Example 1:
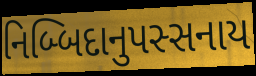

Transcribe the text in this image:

નિબ્બિદાનુપસ્સનાય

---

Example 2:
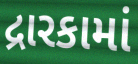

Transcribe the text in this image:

દ્રારકામાં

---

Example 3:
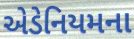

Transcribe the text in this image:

એડેનિયમના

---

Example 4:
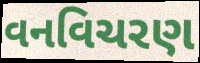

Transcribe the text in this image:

વનવિચરણ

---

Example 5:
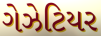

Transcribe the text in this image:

ગેઝેટિયર